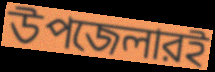
উপজেলারই